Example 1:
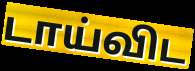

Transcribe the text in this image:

டாய்விட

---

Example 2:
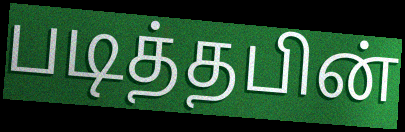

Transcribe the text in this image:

படித்தபின்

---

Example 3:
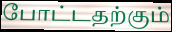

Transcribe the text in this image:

போட்டதற்கும்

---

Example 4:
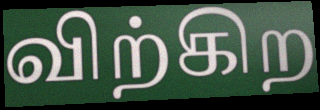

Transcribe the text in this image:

விற்கிற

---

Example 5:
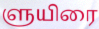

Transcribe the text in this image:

ளுயிரை